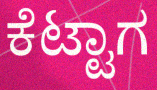
ಕೆಟ್ಟಾಗ